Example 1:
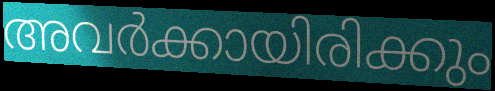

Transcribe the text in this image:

അവർക്കായിരിക്കും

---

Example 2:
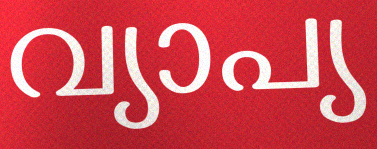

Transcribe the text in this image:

വ്യാപ്യ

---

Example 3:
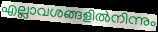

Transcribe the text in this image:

എല്ലാവശങ്ങളിൽനിന്നും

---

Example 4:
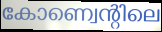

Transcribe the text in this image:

കോണ്വെന്റിലെ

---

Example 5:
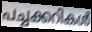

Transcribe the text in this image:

പച്ചക്കറികൾ